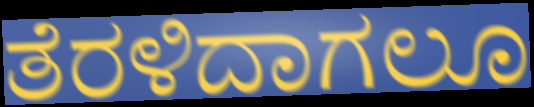
ತೆರಳಿದಾಗಲೂ